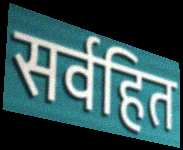
सर्वहित